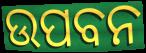
ଉପବନ